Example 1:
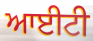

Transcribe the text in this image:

ਆਈਟੀ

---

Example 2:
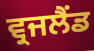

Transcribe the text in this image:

ਵ੍ਰਜਲੈਂਡ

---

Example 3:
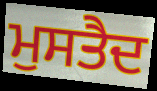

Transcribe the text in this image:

ਮੁਸਤੈਦ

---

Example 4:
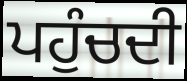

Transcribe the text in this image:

ਪਹੁੰਚਦੀ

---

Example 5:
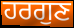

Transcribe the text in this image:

ਹਰਗੁਣ